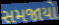
સમજાયો